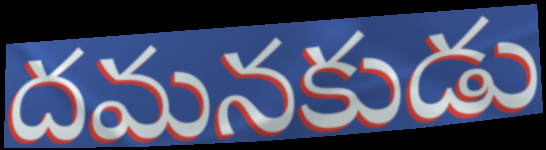
దమనకుడు